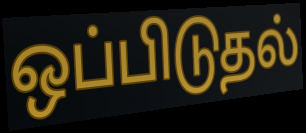
ஒப்பிடுதல்